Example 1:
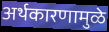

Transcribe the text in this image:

अर्थकारणामुळे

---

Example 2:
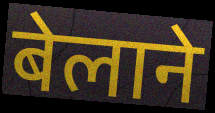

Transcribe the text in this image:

बेलाने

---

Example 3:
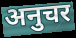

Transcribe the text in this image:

अनुचर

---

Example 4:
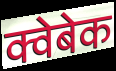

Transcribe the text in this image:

क्वेबेक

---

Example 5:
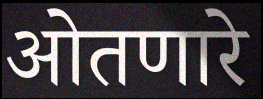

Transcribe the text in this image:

ओतणारे